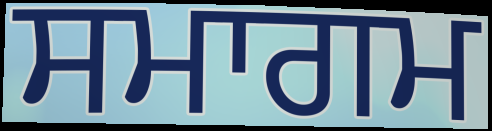
ਸਮਾਗਮ